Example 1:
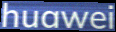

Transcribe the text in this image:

huawei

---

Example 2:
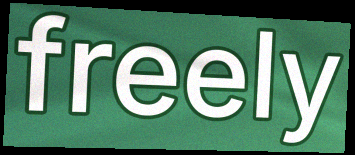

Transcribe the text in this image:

freely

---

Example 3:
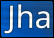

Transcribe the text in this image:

Jha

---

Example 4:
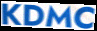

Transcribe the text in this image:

KDMC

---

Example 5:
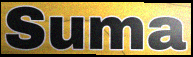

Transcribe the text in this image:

Suma